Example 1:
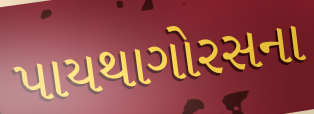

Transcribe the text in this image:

પાયથાગોરસના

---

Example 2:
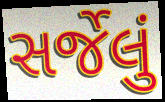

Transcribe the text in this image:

સર્જેલું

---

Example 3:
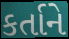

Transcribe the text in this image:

કર્તાને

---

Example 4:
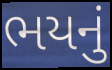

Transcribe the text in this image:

ભયનું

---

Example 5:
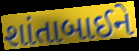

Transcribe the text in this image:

શાંતાબાઈને